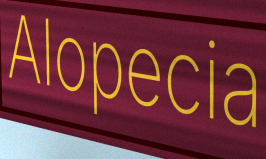
Alopecia